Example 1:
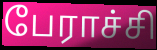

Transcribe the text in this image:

பேராச்சி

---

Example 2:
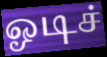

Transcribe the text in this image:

ஓடிச்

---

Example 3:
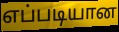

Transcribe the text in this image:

எப்படியான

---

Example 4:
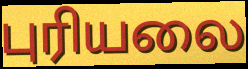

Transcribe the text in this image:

புரியலை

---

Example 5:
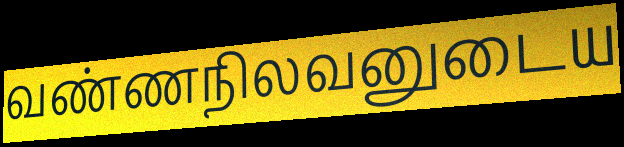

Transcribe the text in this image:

வண்ணநிலவனுடைய